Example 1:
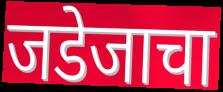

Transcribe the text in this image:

जडेजाचा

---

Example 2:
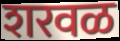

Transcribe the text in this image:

शरवळ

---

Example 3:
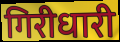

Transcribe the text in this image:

गिरीधारी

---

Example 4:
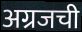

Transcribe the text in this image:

अग्रजची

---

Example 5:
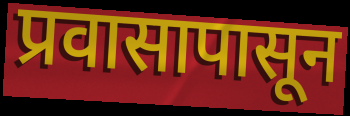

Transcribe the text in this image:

प्रवासापासून